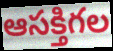
ఆసక్తిగల